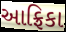
આફ્રિકા